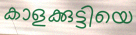
കാളക്കുട്ടിയെ